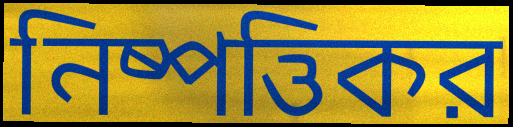
নিষ্পত্তিকর